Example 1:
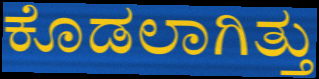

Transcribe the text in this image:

ಕೊಡಲಾಗಿತ್ತು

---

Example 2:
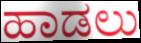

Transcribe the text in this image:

ಹಾಡಲು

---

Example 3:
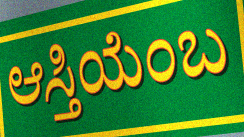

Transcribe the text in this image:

ಆಸ್ತಿಯೆಂಬ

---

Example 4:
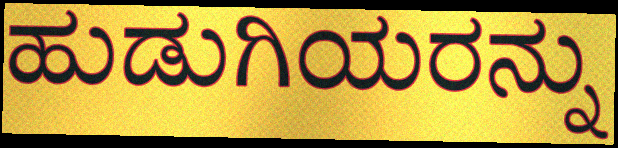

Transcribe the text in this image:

ಹುಡುಗಿಯರನ್ನು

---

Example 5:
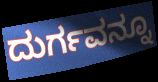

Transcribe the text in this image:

ದುರ್ಗವನ್ನೂ